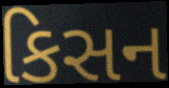
કિસન